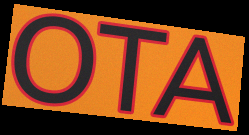
OTA